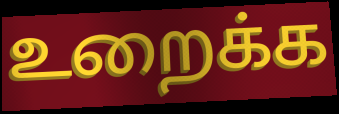
உறைக்க